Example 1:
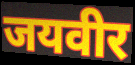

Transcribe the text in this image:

जयवीर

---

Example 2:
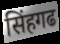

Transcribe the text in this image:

सिंहगढ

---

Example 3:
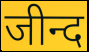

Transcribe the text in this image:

जीन्द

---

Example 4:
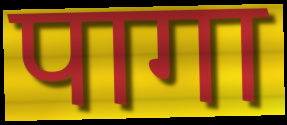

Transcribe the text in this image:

पागा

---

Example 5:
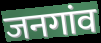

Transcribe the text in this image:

जनगांव